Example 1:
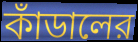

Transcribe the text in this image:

কাঁডালের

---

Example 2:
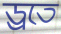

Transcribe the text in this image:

ড্রতে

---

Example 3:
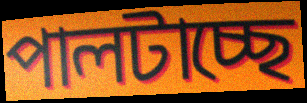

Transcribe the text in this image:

পালটাচ্ছে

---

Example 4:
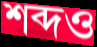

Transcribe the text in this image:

শব্দও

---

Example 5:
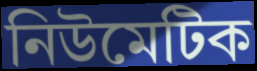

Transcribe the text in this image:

নিউমেটিক